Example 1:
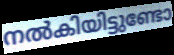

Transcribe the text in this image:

നൽകിയിട്ടുണ്ടോ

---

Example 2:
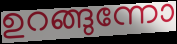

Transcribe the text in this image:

ഉറങ്ങുന്നോ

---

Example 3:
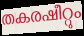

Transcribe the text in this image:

തകരഷീറ്റും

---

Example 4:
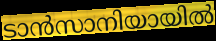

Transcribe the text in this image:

ടാൻസാനിയായിൽ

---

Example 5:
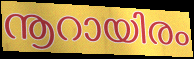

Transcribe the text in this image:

നൂറായിരം